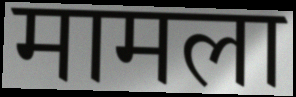
मामला